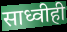
साध्वीही